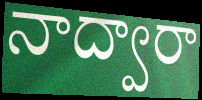
నాద్వారా